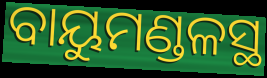
ବାୟୁମଣ୍ଡଳସ୍ଥ